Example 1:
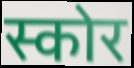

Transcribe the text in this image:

स्कोर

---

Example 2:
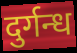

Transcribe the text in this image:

दुर्गन्‍ध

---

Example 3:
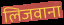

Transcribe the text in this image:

लिजवाना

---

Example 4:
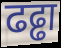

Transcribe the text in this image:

ढढ्ढा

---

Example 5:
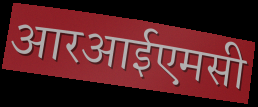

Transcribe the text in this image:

आरआईएमसी